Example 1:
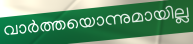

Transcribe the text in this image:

വാർത്തയൊന്നുമായില്ല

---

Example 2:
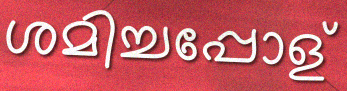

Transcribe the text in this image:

ശമിച്ചപ്പോള്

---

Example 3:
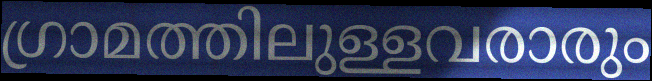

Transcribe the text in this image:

ഗ്രാമത്തിലുള്ളവരാരും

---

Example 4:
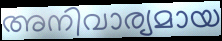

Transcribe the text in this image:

അനിവാര്യമായ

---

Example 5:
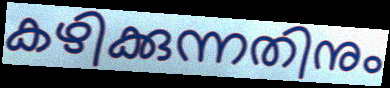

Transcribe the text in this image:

കഴിക്കുന്നതിനും